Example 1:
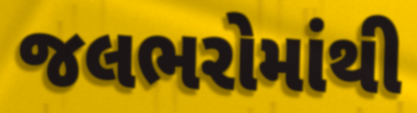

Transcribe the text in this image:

જલભરોમાંથી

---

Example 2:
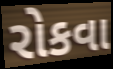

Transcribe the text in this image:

રોકવા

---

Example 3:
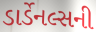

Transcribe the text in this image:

ડાર્ડેનલ્સની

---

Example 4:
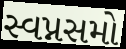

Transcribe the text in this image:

સ્વપ્નસમો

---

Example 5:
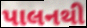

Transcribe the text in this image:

પાલનથી